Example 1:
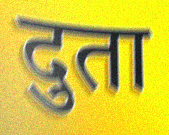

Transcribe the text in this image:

दुता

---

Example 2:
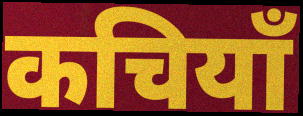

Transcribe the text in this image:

कचियाँ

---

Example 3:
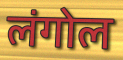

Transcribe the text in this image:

लंगोल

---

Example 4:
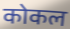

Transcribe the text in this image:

कोकल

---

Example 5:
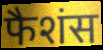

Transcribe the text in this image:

फैशंस